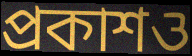
প্রকাশও